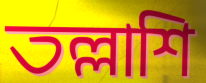
তল্লাশি